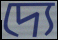
দ্যে